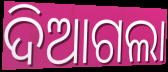
ଦିଆଗଲା